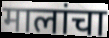
मालांचा